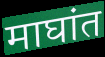
माघांत